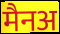
मैनअ